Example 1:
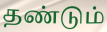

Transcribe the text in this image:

தண்டும்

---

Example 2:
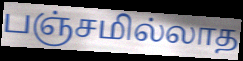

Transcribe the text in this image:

பஞ்சமில்லாத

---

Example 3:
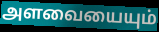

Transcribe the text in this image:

அளவையையும்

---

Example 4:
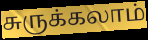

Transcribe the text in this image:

சுருக்கலாம்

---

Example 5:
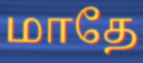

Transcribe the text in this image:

மாதே